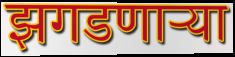
झगडणाऱ्या